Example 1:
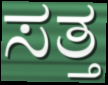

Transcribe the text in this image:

ಸತ್ತ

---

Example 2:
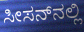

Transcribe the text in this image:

ಸೀಸನ್‌ನಲ್ಲಿ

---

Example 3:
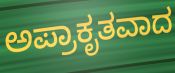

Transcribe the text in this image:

ಅಪ್ರಾಕೃತವಾದ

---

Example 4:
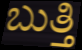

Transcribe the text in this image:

ಬುತ್ತಿ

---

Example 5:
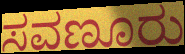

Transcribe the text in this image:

ಸವಣೂರು